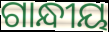
ଗାନ୍ଧୀୟ